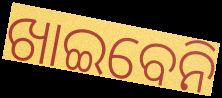
ଖାଇବେନି